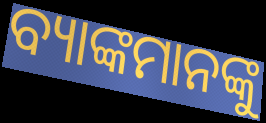
ବ୍ୟାଙ୍କମାନଙ୍କୁ